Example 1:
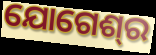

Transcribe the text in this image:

ଯୋଗେଶ୍‍ର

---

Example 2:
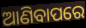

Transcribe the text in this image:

ଆଣିବାପରେ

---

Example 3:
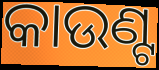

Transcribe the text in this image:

କାଉଣ୍ଟ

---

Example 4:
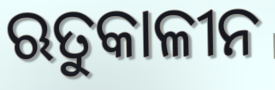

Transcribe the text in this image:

ଋତୁକାଳୀନ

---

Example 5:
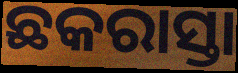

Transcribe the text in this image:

ଛକରାସ୍ତା